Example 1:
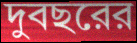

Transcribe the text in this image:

দুবছরের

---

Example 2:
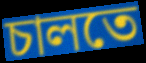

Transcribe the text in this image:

চালতে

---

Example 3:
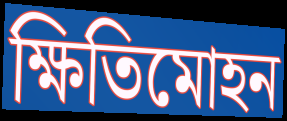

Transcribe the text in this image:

ক্ষিতিমোহন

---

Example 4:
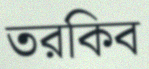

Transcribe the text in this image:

তরকিব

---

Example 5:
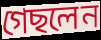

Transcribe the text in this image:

গেছলেন